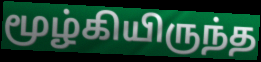
மூழ்கியிருந்த